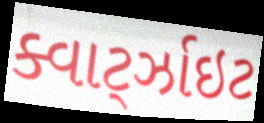
ક્વાર્ટ્ઝાઇટ